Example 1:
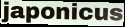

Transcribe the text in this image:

japonicus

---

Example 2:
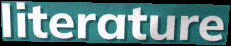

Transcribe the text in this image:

Iiterature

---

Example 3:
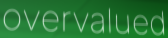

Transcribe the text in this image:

overvalued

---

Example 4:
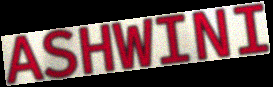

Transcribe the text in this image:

ASHWINI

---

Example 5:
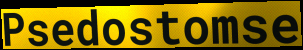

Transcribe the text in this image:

Psedostomse